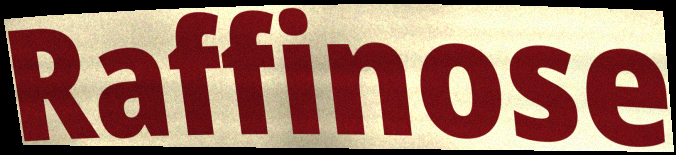
Raffinose